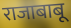
राजाबाबू